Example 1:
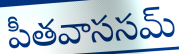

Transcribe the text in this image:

పీతవాససమ్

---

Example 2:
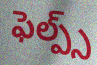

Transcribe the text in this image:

ఫెల్ప్స్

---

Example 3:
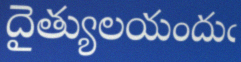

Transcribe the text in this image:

దైత్యులయందుఁ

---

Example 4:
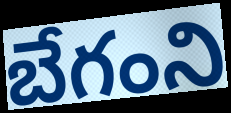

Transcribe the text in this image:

బేగంని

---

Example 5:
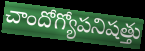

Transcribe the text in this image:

చాందోగ్యోపనిషత్తు